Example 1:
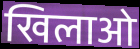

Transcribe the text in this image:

खिलाओ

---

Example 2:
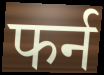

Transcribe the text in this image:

फर्न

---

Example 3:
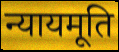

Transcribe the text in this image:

न्यायमूति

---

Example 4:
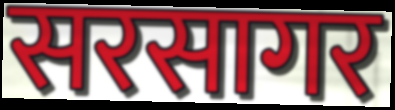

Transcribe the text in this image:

सरसागर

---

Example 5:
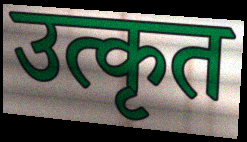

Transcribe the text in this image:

उत्कृत